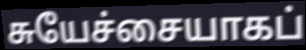
சுயேச்சையாகப்